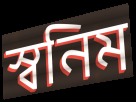
স্বনিম